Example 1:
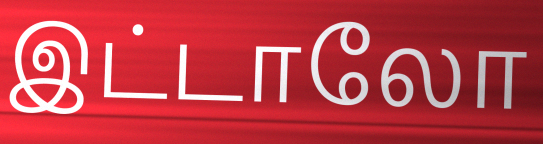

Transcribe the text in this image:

இட்டாலோ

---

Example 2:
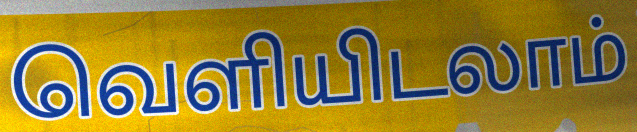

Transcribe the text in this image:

வெளியிடலாம்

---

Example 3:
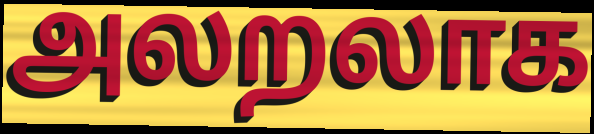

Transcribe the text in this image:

அலறலாக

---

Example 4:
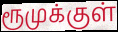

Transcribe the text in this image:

ரூமுக்குள்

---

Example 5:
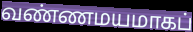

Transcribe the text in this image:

வண்ணமயமாகப்